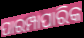
ପାରମ୍ପାପାରିକ